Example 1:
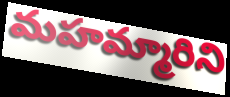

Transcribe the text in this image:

మహమ్మారిని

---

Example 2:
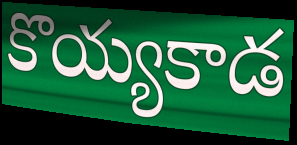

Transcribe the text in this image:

కొయ్యకాడ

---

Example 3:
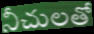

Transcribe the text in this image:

నీచులతో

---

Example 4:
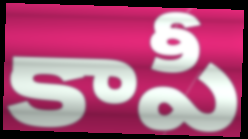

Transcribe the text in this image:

కాపీ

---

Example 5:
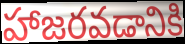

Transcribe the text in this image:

హాజరవడానికి